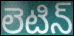
లెటిన్